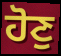
ਹੋਣੁ